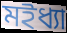
মইধ্যা